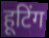
हूटिंग